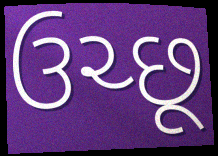
ઉચ્છૂ